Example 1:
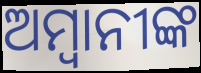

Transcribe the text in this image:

ଅମ୍ବାନୀଙ୍କ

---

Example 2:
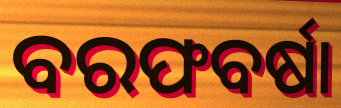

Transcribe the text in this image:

ବରଫବର୍ଷା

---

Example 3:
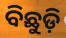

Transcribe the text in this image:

ବିଛୁଡ଼ି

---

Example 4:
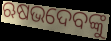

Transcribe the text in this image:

ଋଷଭଦେବଙ୍କୁ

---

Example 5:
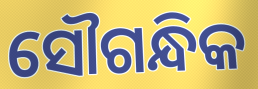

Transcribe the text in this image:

ସୌଗନ୍ଧିକ